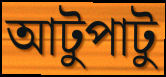
আটুপাটু